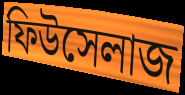
ফিউসেলাজ